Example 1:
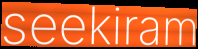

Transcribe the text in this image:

seekiram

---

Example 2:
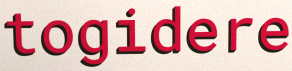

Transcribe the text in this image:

togidere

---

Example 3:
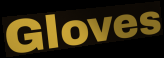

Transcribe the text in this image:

Gloves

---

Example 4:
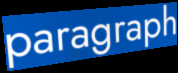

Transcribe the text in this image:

paragraph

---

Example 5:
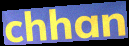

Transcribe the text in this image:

chhan